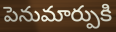
పెనుమార్పుకి